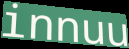
innuu